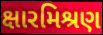
ક્ષારમિશ્રણ